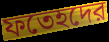
ফতেহদের